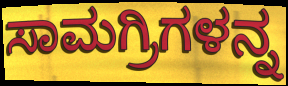
ಸಾಮಗ್ರಿಗಳನ್ನ